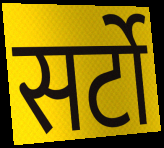
सर्टो